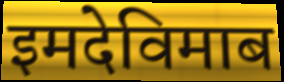
इमदेविमाब